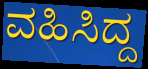
ವಹಿಸಿದ್ದ